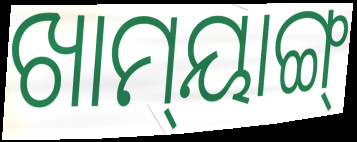
ଖାମ୍‌ୟାଙ୍ଗ୍